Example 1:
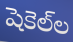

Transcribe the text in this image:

షెకెల్‌ల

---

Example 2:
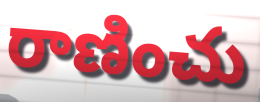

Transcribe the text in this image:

రాణించు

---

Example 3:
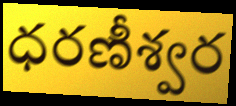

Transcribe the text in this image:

ధరణీశ్వర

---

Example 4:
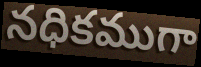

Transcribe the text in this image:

నధికముగా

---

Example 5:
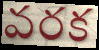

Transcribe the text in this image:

వరక